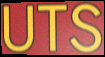
UTS